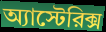
অ্যাস্টেরিক্স